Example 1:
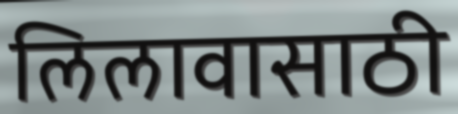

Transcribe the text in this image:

लिलावासाठी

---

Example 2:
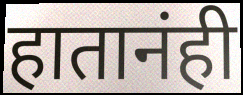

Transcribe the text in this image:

हातानंही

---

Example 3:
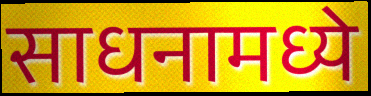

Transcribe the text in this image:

साधनामध्ये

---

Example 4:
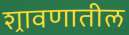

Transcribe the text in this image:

श्रावणातील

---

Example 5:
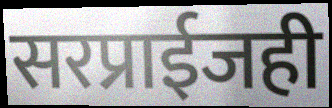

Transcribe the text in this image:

सरप्राईजही